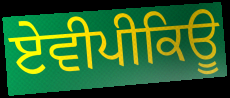
ਏਵੀਪੀਕਿਊ